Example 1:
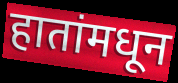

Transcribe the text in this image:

हातांमधून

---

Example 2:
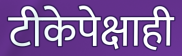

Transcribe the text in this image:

टीकेपेक्षाही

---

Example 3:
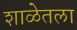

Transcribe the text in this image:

शाळेतला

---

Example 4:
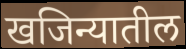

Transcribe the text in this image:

खजिन्यातील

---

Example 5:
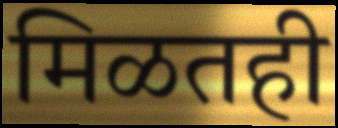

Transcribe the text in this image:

मिळतही